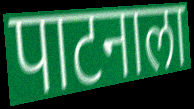
पाटनाला